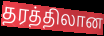
தரத்திலான